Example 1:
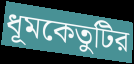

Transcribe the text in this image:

ধূমকেতুটির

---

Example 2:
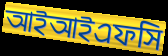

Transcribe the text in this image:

আইআইএফসি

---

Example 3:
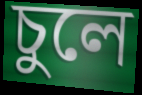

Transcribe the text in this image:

চুলে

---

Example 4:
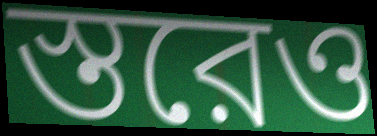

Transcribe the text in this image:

স্তরেও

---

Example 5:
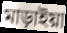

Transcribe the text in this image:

মাড়াইয়া